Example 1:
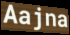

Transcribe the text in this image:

Aajna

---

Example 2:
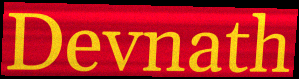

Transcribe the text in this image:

Devnath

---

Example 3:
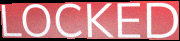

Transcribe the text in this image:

LOCKED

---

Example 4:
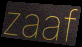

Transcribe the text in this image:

zaaf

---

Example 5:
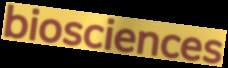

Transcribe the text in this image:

biosciences